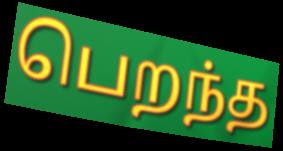
பெறந்த